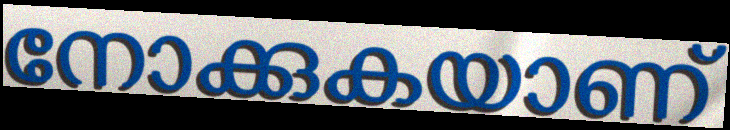
നോക്കുകയാണ്